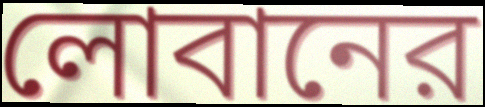
লোবানের